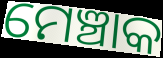
ମେଞ୍ଚାକ